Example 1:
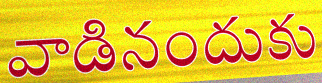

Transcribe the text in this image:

వాడినందుకు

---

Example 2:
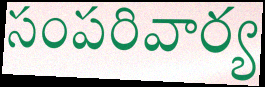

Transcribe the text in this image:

సంపరివార్య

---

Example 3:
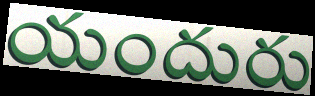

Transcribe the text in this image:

యందురు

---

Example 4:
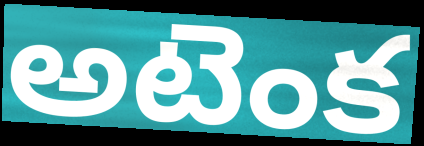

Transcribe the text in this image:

అటెంక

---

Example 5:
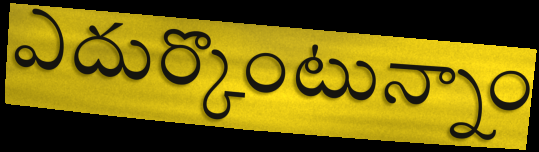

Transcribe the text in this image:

ఎదుర్కొంటున్నాం